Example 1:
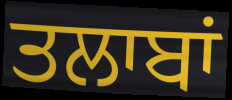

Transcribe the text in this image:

ਤਲਾਬਾਂ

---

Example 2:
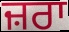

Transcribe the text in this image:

ਜ਼ਰਾ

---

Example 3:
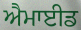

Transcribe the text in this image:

ਐਮਾਈਡ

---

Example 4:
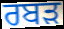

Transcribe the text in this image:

ਰਬੜ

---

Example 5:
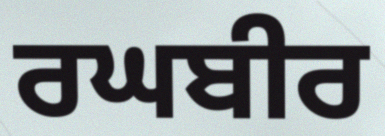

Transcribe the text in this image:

ਰਘਬੀਰ